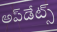
అప్‌డేట్స్